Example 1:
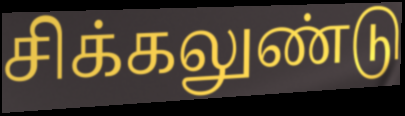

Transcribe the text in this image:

சிக்கலுண்டு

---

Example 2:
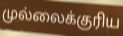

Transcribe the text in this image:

முல்லைக்குரிய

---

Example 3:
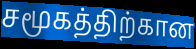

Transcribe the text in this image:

சமூகத்திற்கான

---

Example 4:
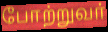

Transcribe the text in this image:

போற்றுவர்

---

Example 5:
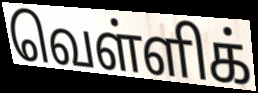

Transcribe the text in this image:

வெள்ளிக்